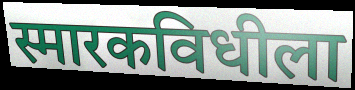
स्मारकविधीला